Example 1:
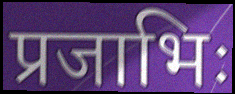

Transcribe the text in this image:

प्रजाभिः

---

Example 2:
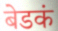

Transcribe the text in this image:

बेडकं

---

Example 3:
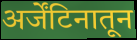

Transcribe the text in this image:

अर्जेंटिनातून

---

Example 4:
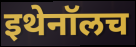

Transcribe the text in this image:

इथेनॉलच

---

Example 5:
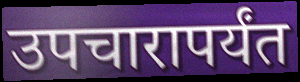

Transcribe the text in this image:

उपचारापर्यंत